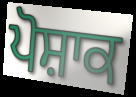
ਪੋਸ਼ਾਕ